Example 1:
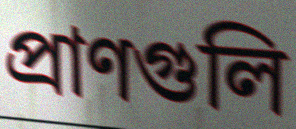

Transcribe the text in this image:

প্রাণগুলি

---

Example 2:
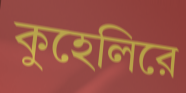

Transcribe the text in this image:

কুহেলিরে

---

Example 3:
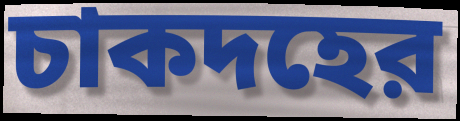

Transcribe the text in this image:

চাকদহের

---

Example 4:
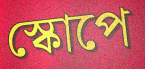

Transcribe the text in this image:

স্কোপে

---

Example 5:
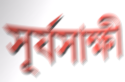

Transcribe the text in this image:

সূর্যসাক্ষী